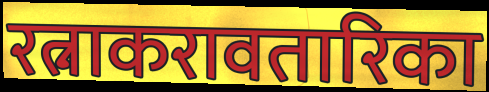
रत्नाकरावतारिका